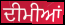
ਦੀਮੀਆਂ